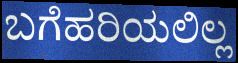
ಬಗೆಹರಿಯಲಿಲ್ಲ